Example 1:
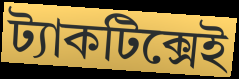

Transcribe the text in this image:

ট্যাকটিক্সেই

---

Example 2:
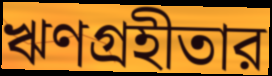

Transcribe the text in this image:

ঋণগ্রহীতার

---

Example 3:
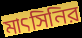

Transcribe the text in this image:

মাৎসিনির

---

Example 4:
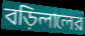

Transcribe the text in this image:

বড়িলালের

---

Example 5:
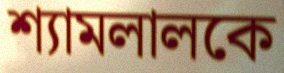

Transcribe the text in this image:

শ্যামলালকে